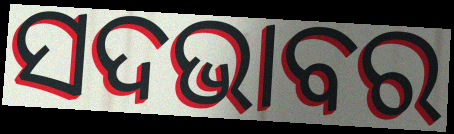
ସଦଭାବର